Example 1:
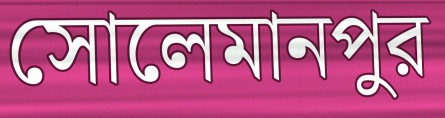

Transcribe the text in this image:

সোলেমানপুর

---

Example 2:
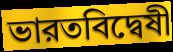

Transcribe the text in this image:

ভারতবিদ্বেষী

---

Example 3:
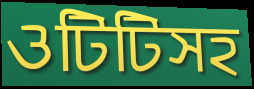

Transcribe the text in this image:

ওটিটিসহ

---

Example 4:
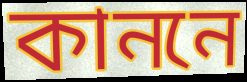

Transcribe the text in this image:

কাননে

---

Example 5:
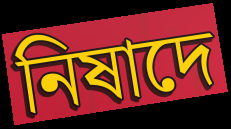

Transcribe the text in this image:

নিষাদে